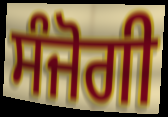
ਸੰਜੋਗੀ